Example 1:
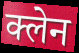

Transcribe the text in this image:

क्लेन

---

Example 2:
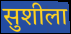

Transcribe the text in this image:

सुशीला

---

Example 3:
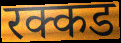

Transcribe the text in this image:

रक्कड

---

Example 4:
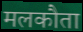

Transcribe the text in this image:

मलकौता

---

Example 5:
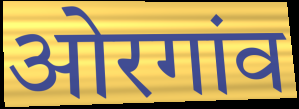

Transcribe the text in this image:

ओरगांव